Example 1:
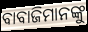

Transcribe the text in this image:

ବାବାଜିମାନଙ୍କୁ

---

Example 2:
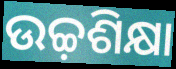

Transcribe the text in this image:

ଉଚ୍ଚ଼ଶିକ୍ଷା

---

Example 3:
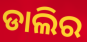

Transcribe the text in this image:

ଡାଲିର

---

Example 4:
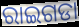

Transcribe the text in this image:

ରାଇଗଡା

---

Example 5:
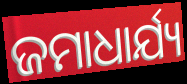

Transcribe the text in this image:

ଜମାଧାର୍ଯ୍ୟ